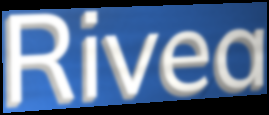
Rivea